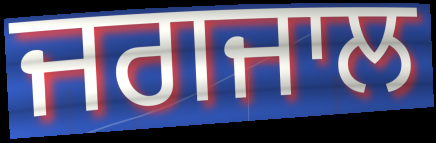
ਜਗਜਾਲ